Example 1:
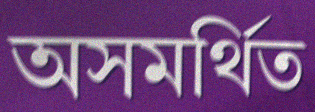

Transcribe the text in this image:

অসমর্থিত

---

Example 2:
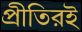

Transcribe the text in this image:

প্রীতিরই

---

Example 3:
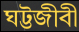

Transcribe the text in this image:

ঘট্টজীবী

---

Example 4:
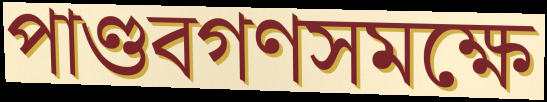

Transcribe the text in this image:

পাণ্ডবগণসমক্ষে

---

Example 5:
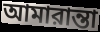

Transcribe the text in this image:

আমারান্তা